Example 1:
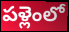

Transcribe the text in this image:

పళ్లెంలో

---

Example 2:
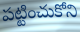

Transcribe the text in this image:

పట్టించుకోని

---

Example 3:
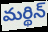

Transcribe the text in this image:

మర్థిన్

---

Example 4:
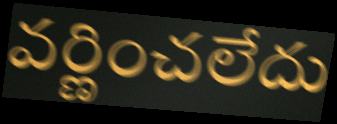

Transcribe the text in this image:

వర్ణించలేదు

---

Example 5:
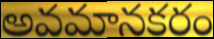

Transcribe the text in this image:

అవమానకరం